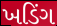
ખડિંગ